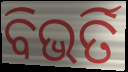
ବିଭର୍ତି